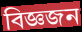
বিজ্ঞজন